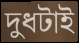
দুধটাই